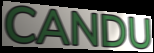
CANDU